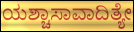
ಯಶ್ಚಾಸಾವಾದಿತ್ಯೇ